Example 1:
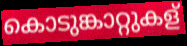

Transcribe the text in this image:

കൊടുങ്കാറ്റുകള്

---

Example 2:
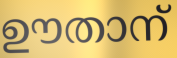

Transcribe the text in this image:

ഊതാന്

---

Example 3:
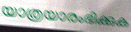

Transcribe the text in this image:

യാത്രയാരംഭിക്കുക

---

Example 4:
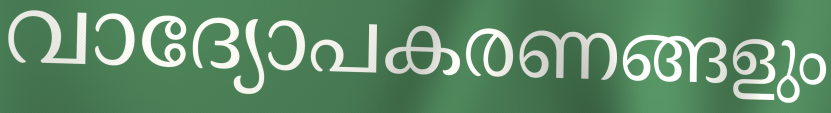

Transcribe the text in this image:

വാദ്യോപകരണങ്ങളും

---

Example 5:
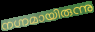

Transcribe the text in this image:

നഗ്നമായിരുന്നു